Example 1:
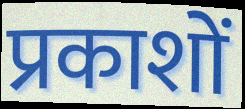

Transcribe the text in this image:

प्रकाशों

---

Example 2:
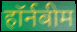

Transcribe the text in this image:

हॉर्नबीम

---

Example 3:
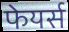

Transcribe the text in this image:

फेयर्स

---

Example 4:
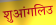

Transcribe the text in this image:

शुआंगलिउ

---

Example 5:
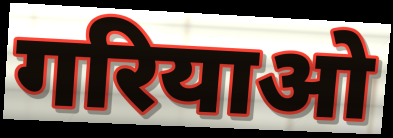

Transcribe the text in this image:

गरियाओ